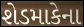
શેડમાકેના